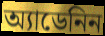
অ্যাডেনিন